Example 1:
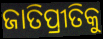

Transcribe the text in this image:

ଜାତିପ୍ରୀତିକୁ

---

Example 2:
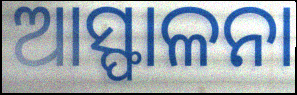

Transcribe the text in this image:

ଆସ୍ଫାଳନା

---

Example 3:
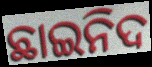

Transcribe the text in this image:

ଛାଇନିଦ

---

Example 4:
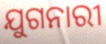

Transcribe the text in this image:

ଯୁଗନାରୀ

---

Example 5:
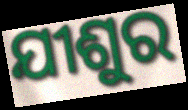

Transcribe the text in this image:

ଯୀଶୁର